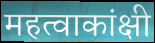
महत्वाकांक्षी